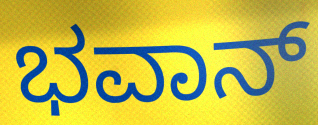
ಭವಾನ್